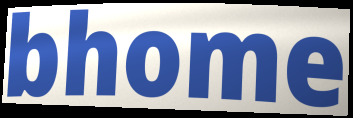
bhome